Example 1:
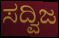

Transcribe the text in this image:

ಸದ್ವಿಜ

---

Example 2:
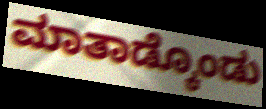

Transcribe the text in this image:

ಮಾತಾಡ್ಕೊಂಡು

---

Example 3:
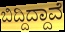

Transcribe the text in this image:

ಬಿದ್ದಿದ್ದಾವೆ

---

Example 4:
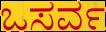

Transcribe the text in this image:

ಒಸರ್ವ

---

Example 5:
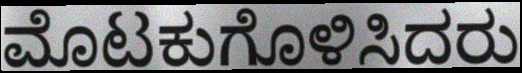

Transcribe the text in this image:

ಮೊಟಕುಗೊಳಿಸಿದರು